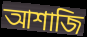
আশাজি